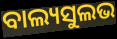
ବାଲ୍ୟସୁଲଭ